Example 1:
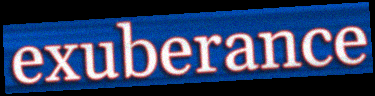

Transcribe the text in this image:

exuberance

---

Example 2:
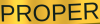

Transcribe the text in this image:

PROPER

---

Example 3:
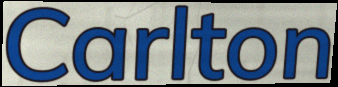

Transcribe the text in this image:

Carlton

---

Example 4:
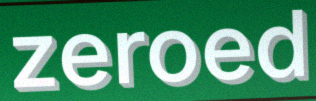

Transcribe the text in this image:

zeroed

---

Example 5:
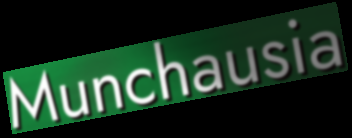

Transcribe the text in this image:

Munchausia